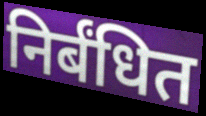
निर्बंधित